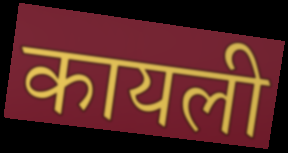
कायली